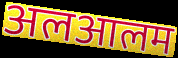
अलआलम